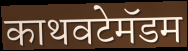
काथवटेमॅडम